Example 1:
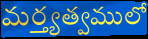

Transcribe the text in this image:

మర్త్యత్వములో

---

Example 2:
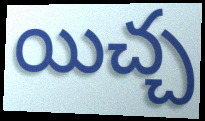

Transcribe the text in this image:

యిచ్చ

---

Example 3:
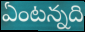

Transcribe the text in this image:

ఏంటన్నది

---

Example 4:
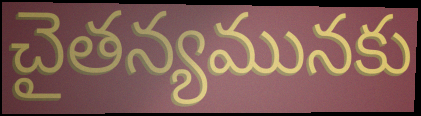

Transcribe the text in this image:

చైతన్యమునకు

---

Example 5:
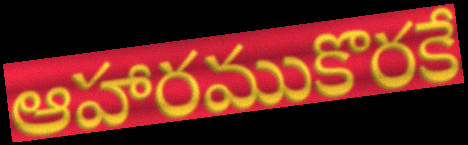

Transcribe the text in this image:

ఆహారముకొరకే